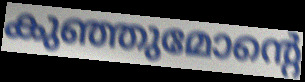
കുഞ്ഞുമോന്റെ